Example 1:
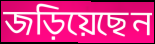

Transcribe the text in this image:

জড়িয়েছেন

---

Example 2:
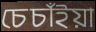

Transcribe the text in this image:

চেচাঁইয়া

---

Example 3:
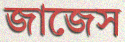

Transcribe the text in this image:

জাজেস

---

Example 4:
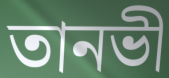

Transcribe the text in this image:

তানভী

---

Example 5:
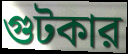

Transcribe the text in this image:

গুটকার